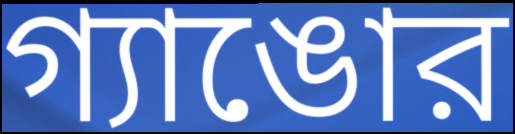
গ্যাঙোর